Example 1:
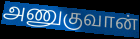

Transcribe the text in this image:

அணுகுவான்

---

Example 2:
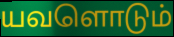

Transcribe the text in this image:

யவளொடும்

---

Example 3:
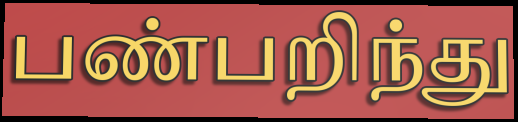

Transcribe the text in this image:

பண்பறிந்து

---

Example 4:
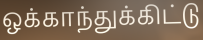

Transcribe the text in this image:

ஒக்காந்துக்கிட்டு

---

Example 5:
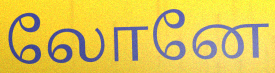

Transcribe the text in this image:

லோனே